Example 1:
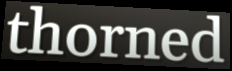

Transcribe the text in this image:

thorned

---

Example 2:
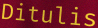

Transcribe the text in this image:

Ditulis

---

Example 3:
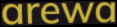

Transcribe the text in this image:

arewa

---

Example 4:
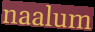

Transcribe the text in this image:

naalum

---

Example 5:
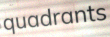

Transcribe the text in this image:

quadrants